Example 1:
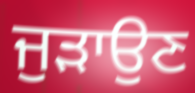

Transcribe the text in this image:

ਜੁੜਾਉਣ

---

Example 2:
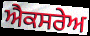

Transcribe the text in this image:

ਐਕਸਰੇਅ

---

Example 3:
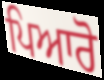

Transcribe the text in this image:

ਪਿਆਰੋ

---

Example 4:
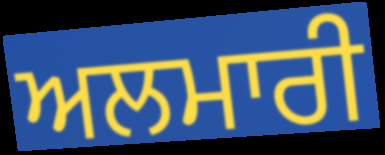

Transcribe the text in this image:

ਅਲਮਾਰੀ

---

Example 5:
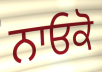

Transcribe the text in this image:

ਨਾਓਕੋ